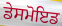
ਡੇਸਮੋਇਡ